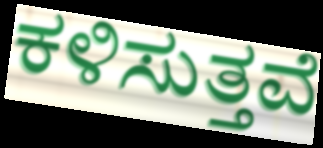
ಕಳಿಸುತ್ತವೆ